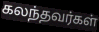
கலந்தவர்கள்